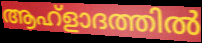
ആഹ്ളാദത്തിൽ